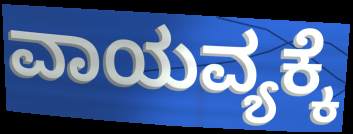
ವಾಯವ್ಯಕ್ಕೆ